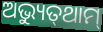
ଅଭ୍ୟୁତ୍‌ଥାମ୍